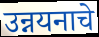
उन्नयनाचे